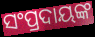
ସଂପ୍ରଦାୟଙ୍କ